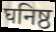
घनिष्ठ